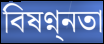
বিষণ্ন্নতা